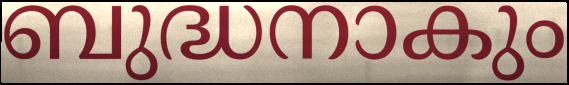
ബുദ്ധനാകും